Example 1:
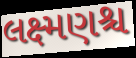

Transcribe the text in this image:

લક્ષ્મણશ્ચ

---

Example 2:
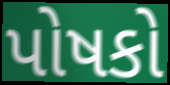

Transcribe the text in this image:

પોષકો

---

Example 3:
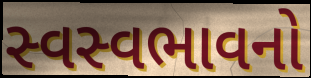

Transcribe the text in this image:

સ્વસ્વભાવનો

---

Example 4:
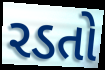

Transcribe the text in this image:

રડતો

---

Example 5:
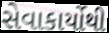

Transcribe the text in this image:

સેવાકાર્યોથી